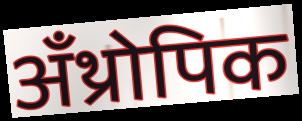
अँथ्रोपिक